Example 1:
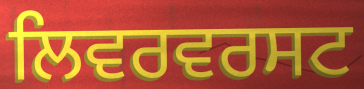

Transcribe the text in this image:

ਲਿਵਰਵਰਸਟ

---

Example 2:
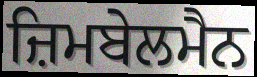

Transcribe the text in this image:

ਜ਼ਿਮਬੇਲਮੈਨ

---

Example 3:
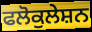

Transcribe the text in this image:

ਫਲੋਕੁਲੇਸ਼ਨ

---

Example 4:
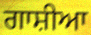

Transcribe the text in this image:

ਗਾਸ਼ੀਆ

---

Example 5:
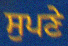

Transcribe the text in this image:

ਸੁਪਣੇ